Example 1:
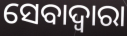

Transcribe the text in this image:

ସେବାଦ୍ବାରା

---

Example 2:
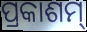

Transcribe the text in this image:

ପ୍ରକାଶମ୍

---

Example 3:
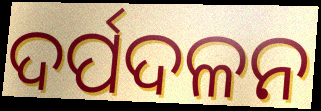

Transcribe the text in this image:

ଦର୍ପଦଳନ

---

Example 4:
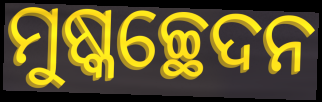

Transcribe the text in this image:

ମୁଷ୍କଚ୍ଛେଦନ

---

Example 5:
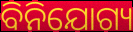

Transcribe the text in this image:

ବିନିଯୋଗ୍ୟ